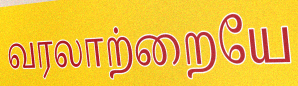
வரலாற்றையே